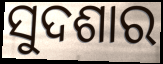
ସୁଦଶାର